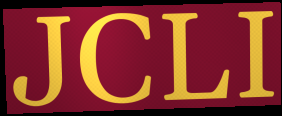
JCLI